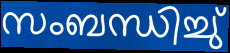
സംബന്ധിച്ചു്